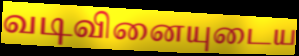
வடிவினையுடைய